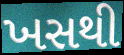
ખસથી